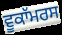
ਵੂਕਾੱਮਰਸ